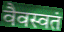
वैवस्वतं